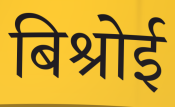
बिश्रोई